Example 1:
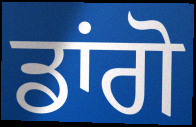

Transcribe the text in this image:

ਡਾਂਗੋ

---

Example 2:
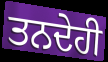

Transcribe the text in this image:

ਤਨਦੇਹੀ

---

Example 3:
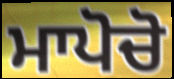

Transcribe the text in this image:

ਮਾਪੋਚੋ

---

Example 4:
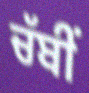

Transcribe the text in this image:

ਚੱਬੀਂ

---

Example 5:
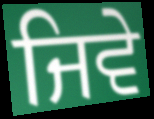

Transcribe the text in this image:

ਜਿਵੇ